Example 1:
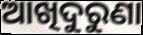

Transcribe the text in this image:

ଆଖିଦୁରୁଣା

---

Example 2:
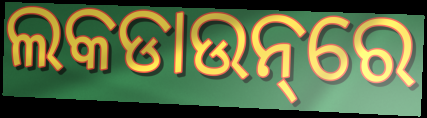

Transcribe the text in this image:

ଲକଡାଉନ୍‌ରେ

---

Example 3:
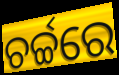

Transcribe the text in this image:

ଚର୍ଚ୍ଚରେ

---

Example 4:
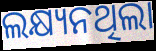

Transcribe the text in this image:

ଲକ୍ଷ୍ୟନଥିଲା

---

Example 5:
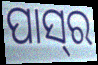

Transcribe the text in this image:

ପାସ୍‍ର